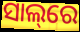
ସାଲ୍‌ରେ